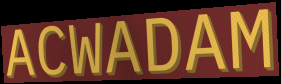
ACWADAM